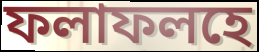
ফলাফলহে